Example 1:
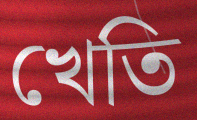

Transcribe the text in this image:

খেতি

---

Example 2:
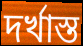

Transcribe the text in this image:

দৰ্খাস্ত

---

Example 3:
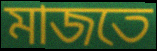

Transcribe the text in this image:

মাজতে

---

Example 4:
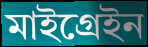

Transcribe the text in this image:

মাইগ্ৰেইন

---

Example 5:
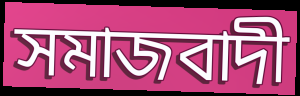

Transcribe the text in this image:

সমাজবাদী